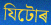
যিটোৰ